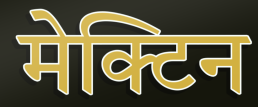
मेक्टिन